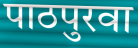
पाठपुरवा